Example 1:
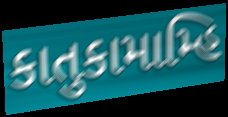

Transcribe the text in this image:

કાતુકામામ્હિ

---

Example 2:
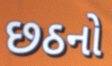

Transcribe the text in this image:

છઠનો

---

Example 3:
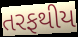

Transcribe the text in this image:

તરફથીય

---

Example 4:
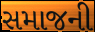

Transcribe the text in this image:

સમાજની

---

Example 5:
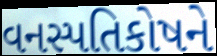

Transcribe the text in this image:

વનસ્પતિકોષને